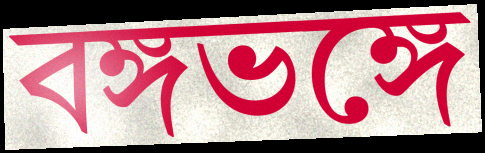
বঙ্গভঙ্গে